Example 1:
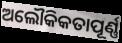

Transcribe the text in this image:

ଅଲୌକିକତାପୂର୍ଣ୍ଣ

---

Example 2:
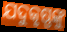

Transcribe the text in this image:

ଯଦୁକୃଷ୍ଣଙ୍କୁ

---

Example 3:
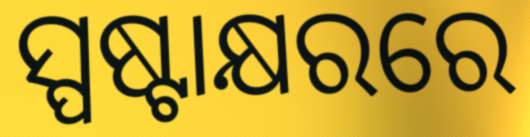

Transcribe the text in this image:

ସ୍ପଷ୍ଟାକ୍ଷରରେ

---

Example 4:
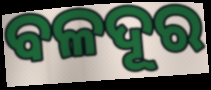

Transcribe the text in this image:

ବଳଦୂର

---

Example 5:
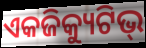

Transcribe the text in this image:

ଏକଜିକ୍ୟୁଟିଭ୍